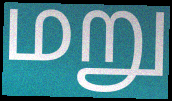
மறு